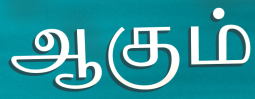
ஆகும்